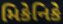
મિકેનિકે